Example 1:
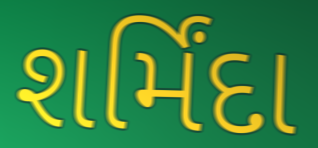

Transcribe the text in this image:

શર્મિંદા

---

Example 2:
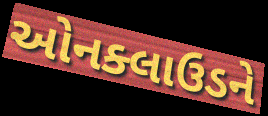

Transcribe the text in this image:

ઓનક્લાઉડને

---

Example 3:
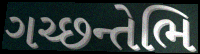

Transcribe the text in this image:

ગચ્છન્તેભિ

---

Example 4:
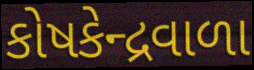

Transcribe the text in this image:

કોષકેન્દ્રવાળા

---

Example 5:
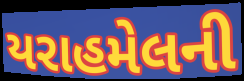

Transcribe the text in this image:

યરાહમેલની